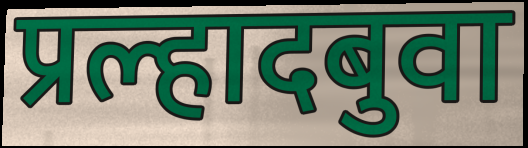
प्रल्हादबुवा